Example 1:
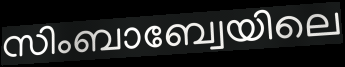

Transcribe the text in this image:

സിംബാബ്വേയിലെ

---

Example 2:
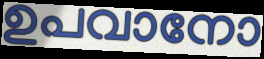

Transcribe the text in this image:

ഉപവാനോ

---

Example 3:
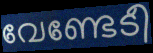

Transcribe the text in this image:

വേണ്ടേടീ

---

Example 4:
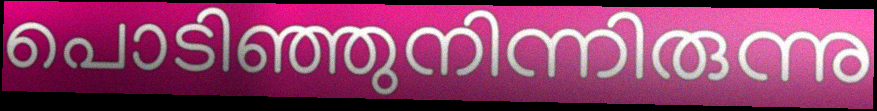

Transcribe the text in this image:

പൊടിഞ്ഞുനിന്നിരുന്നു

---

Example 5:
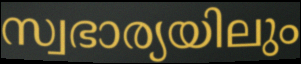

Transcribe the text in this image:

സ്വഭാര്യയിലും